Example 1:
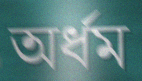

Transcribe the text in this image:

অর্ধম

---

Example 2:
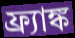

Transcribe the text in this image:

ফ্র্যাঙ্ক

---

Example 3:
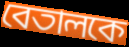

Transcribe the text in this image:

বেতালকে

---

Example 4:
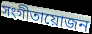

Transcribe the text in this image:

সংগীতায়োজন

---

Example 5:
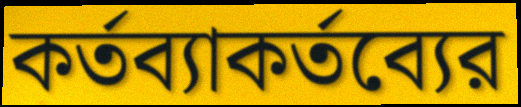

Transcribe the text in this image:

কর্তব্যাকর্তব্যের